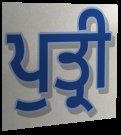
ਪੁਤ੍ਰੀ